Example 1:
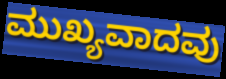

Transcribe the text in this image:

ಮುಖ್ಯವಾದವು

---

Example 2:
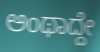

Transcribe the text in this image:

ಅಂಥಾದ್ದೇ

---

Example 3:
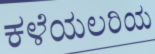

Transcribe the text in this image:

ಕಳೆಯಲರಿಯ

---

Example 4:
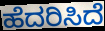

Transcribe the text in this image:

ಹೆದರಿಸಿದೆ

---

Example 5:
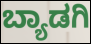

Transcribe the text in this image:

ಬ್ಯಾಡಗಿ